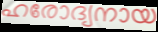
ഹരോദ്യനായ